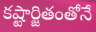
కష్టార్జితంతోనే